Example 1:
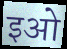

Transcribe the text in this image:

इओ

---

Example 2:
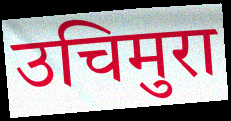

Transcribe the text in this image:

उचिमुरा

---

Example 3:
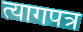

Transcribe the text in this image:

त्‍यागपत्र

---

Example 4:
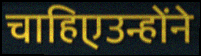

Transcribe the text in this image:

चाहिएउन्होंने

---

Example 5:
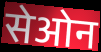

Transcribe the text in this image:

सेओन